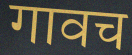
गावच